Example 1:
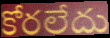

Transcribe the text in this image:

కోరలేదు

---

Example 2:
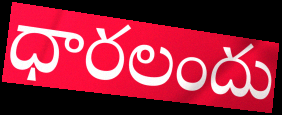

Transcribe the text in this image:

ధారలందు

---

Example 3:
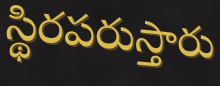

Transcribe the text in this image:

స్థిరపరుస్తారు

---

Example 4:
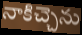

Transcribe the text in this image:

నాకిచ్చెను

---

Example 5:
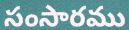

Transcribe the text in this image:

సంసారము